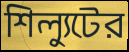
শিল্যুটের